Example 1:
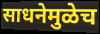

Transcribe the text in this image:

साधनेमुळेच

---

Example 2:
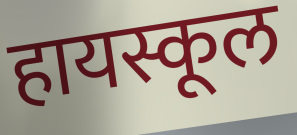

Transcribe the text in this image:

हायस्कूल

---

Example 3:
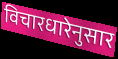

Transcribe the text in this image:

विचारधारेनुसार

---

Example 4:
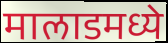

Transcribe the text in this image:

मालाडमध्ये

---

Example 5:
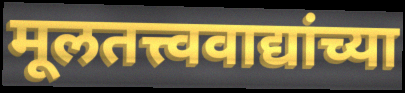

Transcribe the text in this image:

मूलतत्त्ववाद्यांच्या